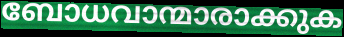
ബോധവാന്മാരാക്കുക